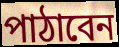
পাঠাবেন